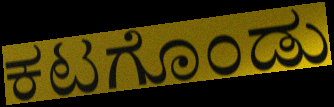
ಕಟಗೊಂಡು